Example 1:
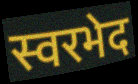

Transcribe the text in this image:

स्वरभेद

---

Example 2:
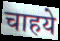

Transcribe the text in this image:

चाहये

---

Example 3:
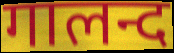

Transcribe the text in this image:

गालन्द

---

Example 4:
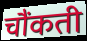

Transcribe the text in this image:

चौंकती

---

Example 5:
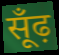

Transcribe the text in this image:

सूँढ़